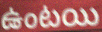
ఉంటయి